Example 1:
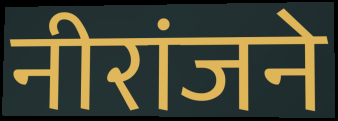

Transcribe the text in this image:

नीरांजने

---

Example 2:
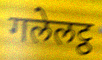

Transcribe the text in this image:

गलेलट्ठ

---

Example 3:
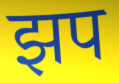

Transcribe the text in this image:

झप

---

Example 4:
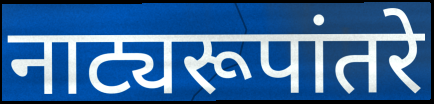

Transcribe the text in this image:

नाट्यरूपांतरे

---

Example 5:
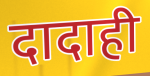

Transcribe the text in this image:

दादाही